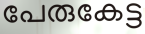
പേരുകേട്ട